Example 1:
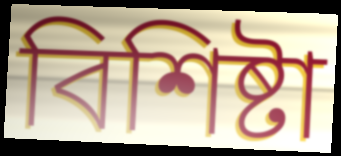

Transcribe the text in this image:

বিশিষ্টা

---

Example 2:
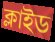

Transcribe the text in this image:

ক্লাইড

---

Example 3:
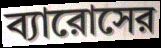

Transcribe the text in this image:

ব্যারোসের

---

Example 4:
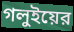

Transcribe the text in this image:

গলুইয়ের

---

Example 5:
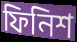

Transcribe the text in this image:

ফিনিশ